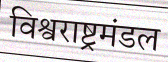
विश्वराष्ट्रमंडल